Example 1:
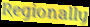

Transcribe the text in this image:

Regionally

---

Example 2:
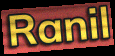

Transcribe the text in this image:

Ranil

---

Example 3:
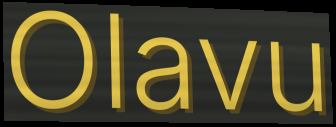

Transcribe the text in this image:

Olavu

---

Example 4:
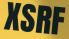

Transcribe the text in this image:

XSRF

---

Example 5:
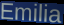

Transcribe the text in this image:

Emilia